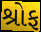
શ્રોફ